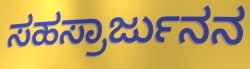
ಸಹಸ್ರಾರ್ಜುನನ